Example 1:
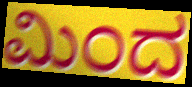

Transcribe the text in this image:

ಮಿಂದ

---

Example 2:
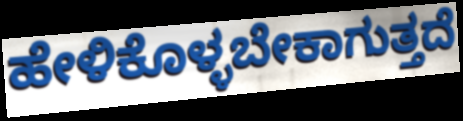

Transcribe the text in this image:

ಹೇಳಿಕೊಳ್ಳಬೇಕಾಗುತ್ತದೆ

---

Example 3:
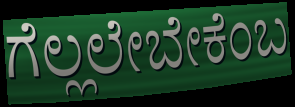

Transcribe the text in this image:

ಗೆಲ್ಲಲೇಬೇಕೆಂಬ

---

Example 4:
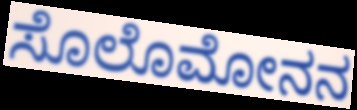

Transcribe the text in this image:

ಸೊಲೊಮೋನನ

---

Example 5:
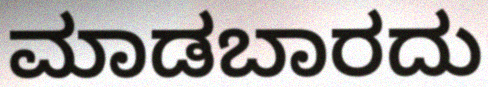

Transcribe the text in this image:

ಮಾಡಬಾರದು